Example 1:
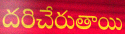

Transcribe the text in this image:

దరిచేరుతాయి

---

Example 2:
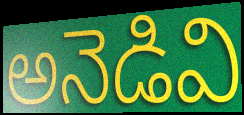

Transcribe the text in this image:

అనెడివి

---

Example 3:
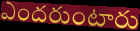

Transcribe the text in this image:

ఎందరుంటారు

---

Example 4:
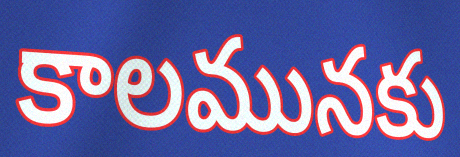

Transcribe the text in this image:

కాలమునకు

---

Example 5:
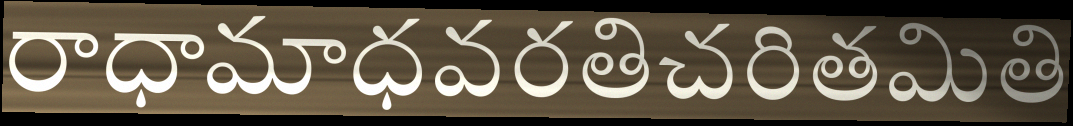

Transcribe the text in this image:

రాధామాధవరతిచరితమితి